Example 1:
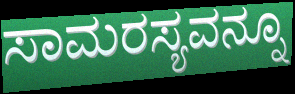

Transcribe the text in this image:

ಸಾಮರಸ್ಯವನ್ನೂ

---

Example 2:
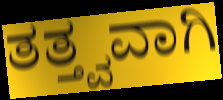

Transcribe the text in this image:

ತತ್ತ್ವವಾಗಿ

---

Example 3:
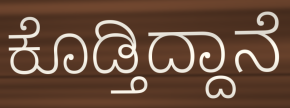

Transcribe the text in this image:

ಕೊಡ್ತಿದ್ದಾನೆ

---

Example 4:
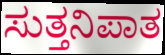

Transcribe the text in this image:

ಸುತ್ತನಿಪಾತ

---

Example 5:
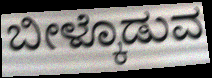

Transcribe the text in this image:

ಬೀಳ್ಕೊಡುವ